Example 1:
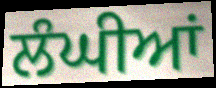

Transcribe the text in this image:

ਲੰਘੀਆਂ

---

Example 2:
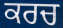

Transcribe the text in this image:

ਕਰਚ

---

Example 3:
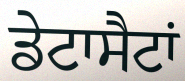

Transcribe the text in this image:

ਡੇਟਾਸੈਟਾਂ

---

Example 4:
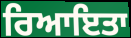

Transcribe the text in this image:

ਰਿਆਇਤਾ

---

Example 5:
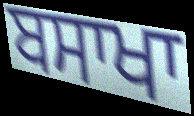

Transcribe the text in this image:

ਬਸਾਖਾ